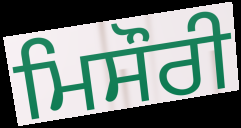
ਮਿਸੌਰੀ